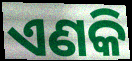
ଏଣକି